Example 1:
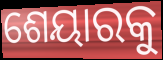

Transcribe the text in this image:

ଶେୟାରକୁ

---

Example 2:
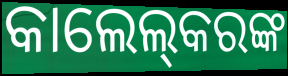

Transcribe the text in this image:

କାଲେଲ୍‌କରଙ୍କ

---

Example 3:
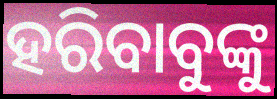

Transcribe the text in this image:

ହରିବାବୁଙ୍କୁ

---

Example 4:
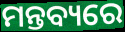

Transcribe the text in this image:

ମନ୍ତବ୍ୟରେ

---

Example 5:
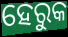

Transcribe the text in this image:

ହେରୁକ